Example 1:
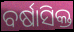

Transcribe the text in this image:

ବର୍ଷାସିକ୍ତ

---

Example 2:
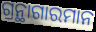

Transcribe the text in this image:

ଗ୍ରନ୍ଥାଗାରମାନ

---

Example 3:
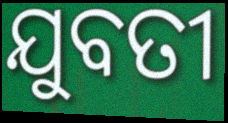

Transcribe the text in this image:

ଯୁବତୀ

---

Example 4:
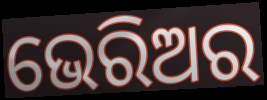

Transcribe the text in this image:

ଭେରିଅର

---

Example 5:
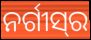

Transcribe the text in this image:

ନର୍ଗୀସ୍‍ର